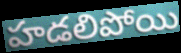
హడలిపోయి